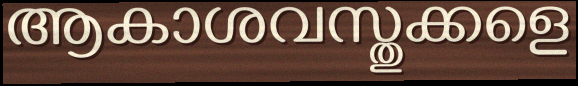
ആകാശവസ്തുക്കളെ